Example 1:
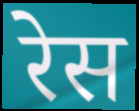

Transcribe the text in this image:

रेस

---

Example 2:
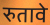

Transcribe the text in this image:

रुतावे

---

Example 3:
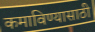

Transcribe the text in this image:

कमाविण्यासाठी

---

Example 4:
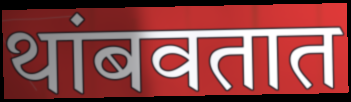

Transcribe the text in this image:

थांबवतात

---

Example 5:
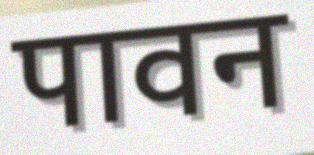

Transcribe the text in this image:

पावन